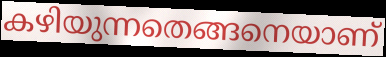
കഴിയുന്നതെങ്ങനെയാണ്